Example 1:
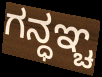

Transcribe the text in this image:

ಗನ್ಧಞ್ಚ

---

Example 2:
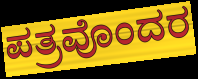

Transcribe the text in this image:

ಪತ್ರವೊಂದರ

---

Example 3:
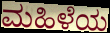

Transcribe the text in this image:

ಮಹಿಳೆಯ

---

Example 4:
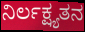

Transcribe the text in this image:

ನಿರ್ಲಕ್ಷ್ಯತನ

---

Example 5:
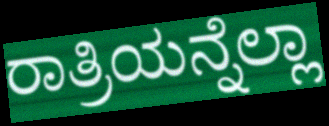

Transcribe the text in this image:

ರಾತ್ರಿಯನ್ನೆಲ್ಲಾ